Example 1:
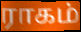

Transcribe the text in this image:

ராகம்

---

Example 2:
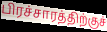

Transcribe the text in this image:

பிரச்சாரத்திற்குச்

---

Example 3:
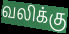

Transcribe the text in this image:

வலிக்கு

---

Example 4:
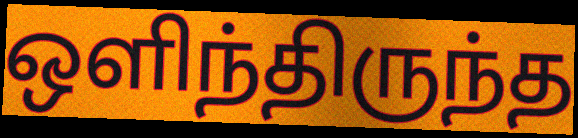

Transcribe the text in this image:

ஒளிந்திருந்த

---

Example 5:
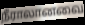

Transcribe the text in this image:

நீராலானவை